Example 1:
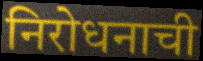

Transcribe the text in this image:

निरोधनाची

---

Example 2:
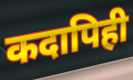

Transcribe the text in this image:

कदापिही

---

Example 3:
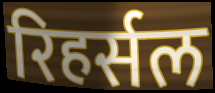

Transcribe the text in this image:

रिहर्सल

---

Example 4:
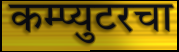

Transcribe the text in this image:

कम्प्युटरचा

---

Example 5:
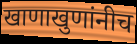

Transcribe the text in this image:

खाणाखुणांनीच